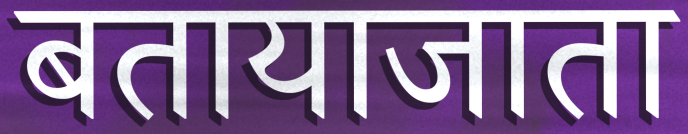
बतायाजाता